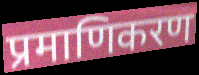
प्रमाणिकरण